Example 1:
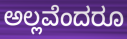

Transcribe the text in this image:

ಅಲ್ಲವೆಂದರೂ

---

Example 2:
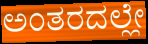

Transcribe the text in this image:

ಅಂತರದಲ್ಲೇ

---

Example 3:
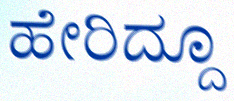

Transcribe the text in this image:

ಹೇರಿದ್ದೂ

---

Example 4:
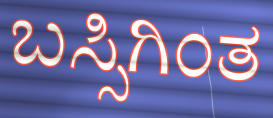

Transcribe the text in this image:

ಬಸ್ಸಿಗಿಂತ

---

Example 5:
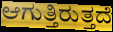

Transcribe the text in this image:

ಆಗುತ್ತಿರುತ್ತದೆ